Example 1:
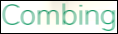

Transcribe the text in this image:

Combing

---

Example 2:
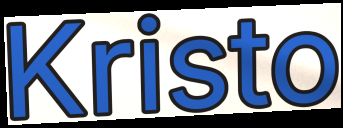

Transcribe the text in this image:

Kristo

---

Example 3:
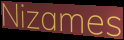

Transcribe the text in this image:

Nizames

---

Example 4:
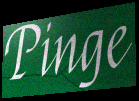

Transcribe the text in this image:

Pinge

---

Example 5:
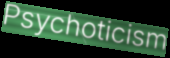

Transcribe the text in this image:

Psychoticism